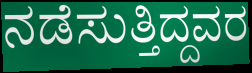
ನಡೆಸುತ್ತಿದ್ದವರ